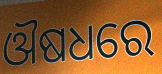
ଔଷଧରେ